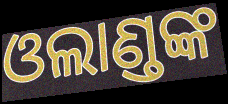
ଓଲାଣ୍ଡଙ୍କ